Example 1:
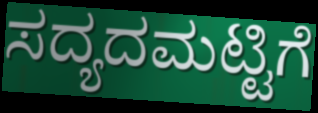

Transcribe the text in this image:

ಸದ್ಯದಮಟ್ಟಿಗೆ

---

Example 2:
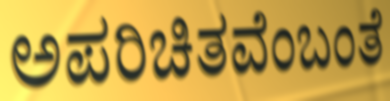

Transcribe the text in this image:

ಅಪರಿಚಿತವೆಂಬಂತೆ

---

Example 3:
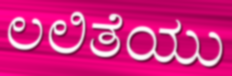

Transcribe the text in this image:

ಲಲಿತೆಯು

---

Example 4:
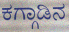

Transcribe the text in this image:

ಕಗ್ಗಾಡಿನ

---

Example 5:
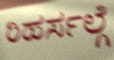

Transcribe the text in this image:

ರಿಹರ್ಸಲ್ಗೆ